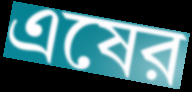
এষের